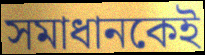
সমাধানকেই